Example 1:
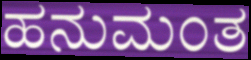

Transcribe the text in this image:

ಹನುಮಂತ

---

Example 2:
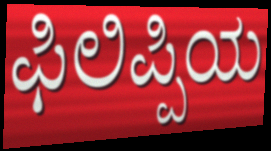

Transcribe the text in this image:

ಫಿಲಿಪ್ಪಿಯ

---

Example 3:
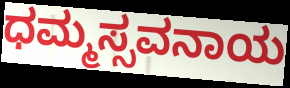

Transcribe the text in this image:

ಧಮ್ಮಸ್ಸವನಾಯ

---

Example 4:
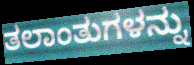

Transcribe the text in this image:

ತಲಾಂತುಗಳನ್ನು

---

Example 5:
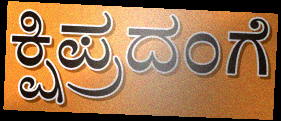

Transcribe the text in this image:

ಕ್ಷಿಪ್ರದಂಗೆ